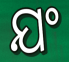
ଯଂ